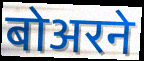
बोअरने